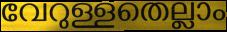
വേറുള്ളതെല്ലാം